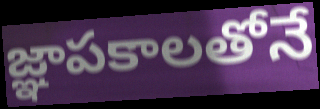
జ్ఞాపకాలతోనే